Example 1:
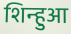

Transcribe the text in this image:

शिन्हुआ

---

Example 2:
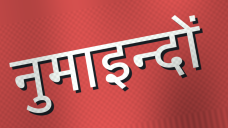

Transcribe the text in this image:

नुमाइन्दों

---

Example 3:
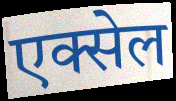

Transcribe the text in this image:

एक्सेल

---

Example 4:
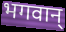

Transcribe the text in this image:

भगवान्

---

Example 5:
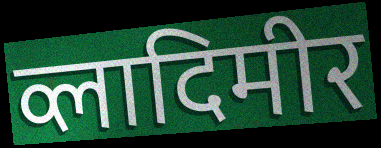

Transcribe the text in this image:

व्लादिमीर